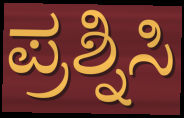
ಪ್ರಶ್ನಿಸಿ